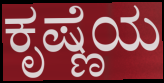
ಕೃಷ್ಣೆಯ